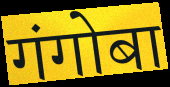
गंगोबा